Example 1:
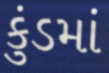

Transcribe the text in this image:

કુંડમાં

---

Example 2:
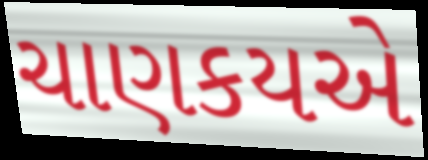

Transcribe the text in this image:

ચાણકયએ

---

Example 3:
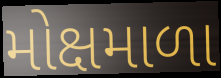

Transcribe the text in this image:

મોક્ષમાળા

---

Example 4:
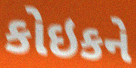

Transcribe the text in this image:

કોઇકને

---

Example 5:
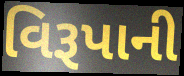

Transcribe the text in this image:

વિરૂપાની